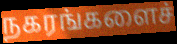
நகரங்களைச்